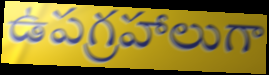
ఉపగ్రహాలుగా